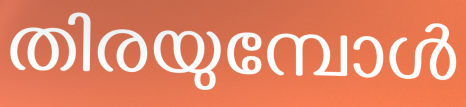
തിരയുമ്പോൾ